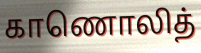
காணொலித்